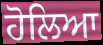
ਹੋਲਿਆ